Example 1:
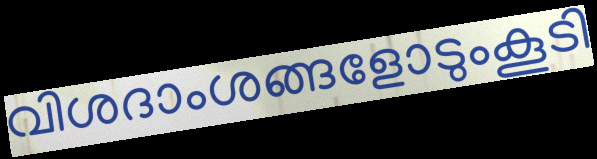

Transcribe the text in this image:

വിശദാംശങ്ങളോടുംകൂടി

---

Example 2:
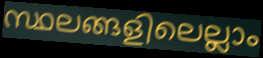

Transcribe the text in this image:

സ്ഥലങ്ങളിലെല്ലാം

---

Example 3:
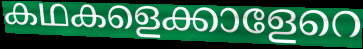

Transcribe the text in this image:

കഥകളെക്കാളേറെ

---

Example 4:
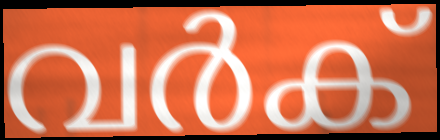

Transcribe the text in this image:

വർക്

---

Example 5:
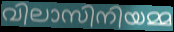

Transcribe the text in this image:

വിലാസിനിയമ്മ